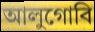
আলুগোবি